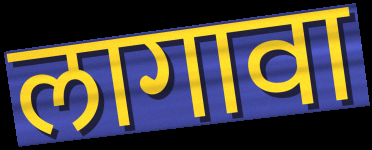
लागावा